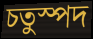
চতুস্পদ